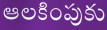
ఆలకింపుకు